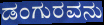
ಡಂಗುರವನು